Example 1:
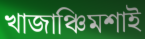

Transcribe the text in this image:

খাজাঞ্চিমশাই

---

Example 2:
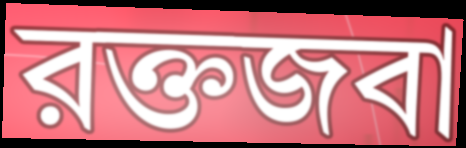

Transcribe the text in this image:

রক্তজবা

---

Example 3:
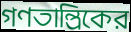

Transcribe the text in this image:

গণতান্ত্রিকের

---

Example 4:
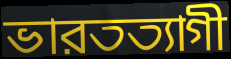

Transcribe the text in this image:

ভারতত্যাগী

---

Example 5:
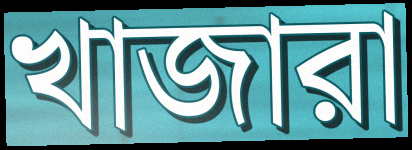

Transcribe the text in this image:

খাজারা